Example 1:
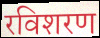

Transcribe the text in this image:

रविशरण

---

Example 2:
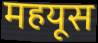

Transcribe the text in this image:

महयूस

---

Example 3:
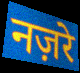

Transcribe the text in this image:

नज़रे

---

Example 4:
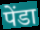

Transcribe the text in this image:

पेंडा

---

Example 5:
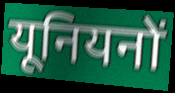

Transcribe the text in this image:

यूनियनों